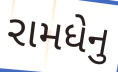
રામધેનુ